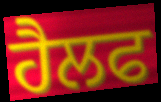
ਹੈਲਫ